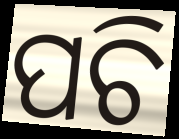
ପଚି